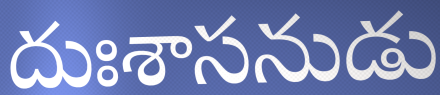
దుఃశాసనుడు